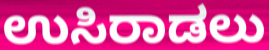
ಉಸಿರಾಡಲು